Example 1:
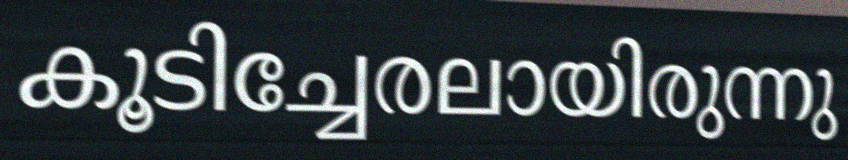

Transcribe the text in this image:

കൂടിച്ചേരലായിരുന്നു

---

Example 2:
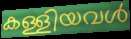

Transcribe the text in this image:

കള്ളിയവൾ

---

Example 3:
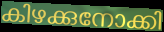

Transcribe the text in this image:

കിഴക്കുനോക്കി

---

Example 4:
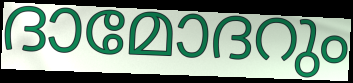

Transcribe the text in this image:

ദാമോദറും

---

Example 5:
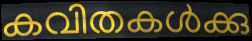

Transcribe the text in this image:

കവിതകൾക്കു